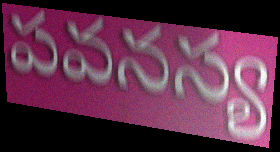
పవనస్య